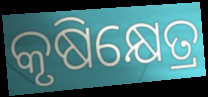
କୃଷିକ୍ଷେତ୍ର